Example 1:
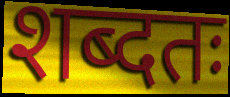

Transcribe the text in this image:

शब्दतः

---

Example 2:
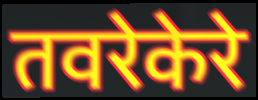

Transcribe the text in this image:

तवरेकेरे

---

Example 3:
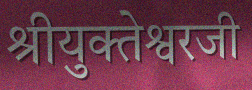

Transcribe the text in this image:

श्रीयुक्तेश्वरजी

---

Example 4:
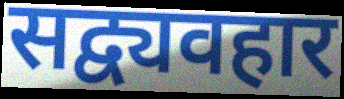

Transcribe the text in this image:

सद्व्यवहार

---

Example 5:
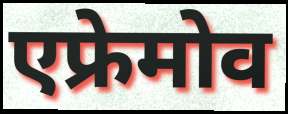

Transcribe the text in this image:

एफ्रेमोव